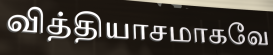
வித்தியாசமாகவே